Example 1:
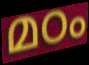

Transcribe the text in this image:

മഠം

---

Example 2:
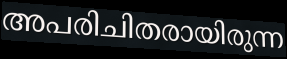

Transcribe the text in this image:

അപരിചിതരായിരുന്ന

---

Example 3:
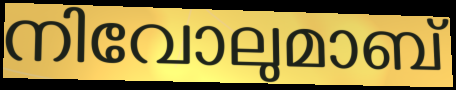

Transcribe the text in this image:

നിവോലുമാബ്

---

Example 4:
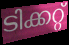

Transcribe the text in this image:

ടിക്കറ്റ്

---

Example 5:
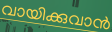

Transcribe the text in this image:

വായിക്കുവാൻ